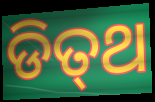
ଡିତ୍‍ଥ